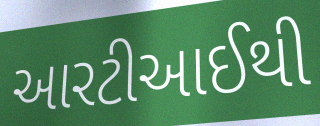
આરટીઆઈથી